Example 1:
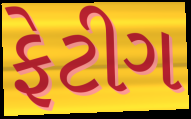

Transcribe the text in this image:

ફેટીગ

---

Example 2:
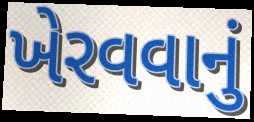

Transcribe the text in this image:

ખેરવવાનું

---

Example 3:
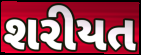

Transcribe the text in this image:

શરીયત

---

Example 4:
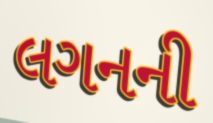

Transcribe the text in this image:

લગનની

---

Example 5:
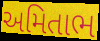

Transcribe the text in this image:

અમિતાભ